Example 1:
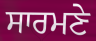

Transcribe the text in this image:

ਸਾਰਮਣੇ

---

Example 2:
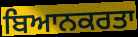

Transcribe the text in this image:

ਬਿਆਨਕਰਤਾ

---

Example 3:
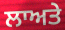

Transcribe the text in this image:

ਲਾਅਤੇ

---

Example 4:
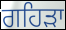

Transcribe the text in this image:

ਗਹਿੜਾ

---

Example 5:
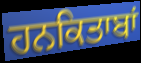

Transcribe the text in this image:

ਹਨਕਿਤਾਬਾਂ